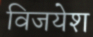
विजयेश